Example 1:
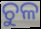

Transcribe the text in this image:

ଚୁଳ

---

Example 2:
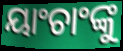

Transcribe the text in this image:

ୟାଂଚାଂଙ୍କୁ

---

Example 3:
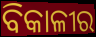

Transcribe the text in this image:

ବିକାଳୀର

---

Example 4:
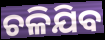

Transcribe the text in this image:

ଚଳିଯିବ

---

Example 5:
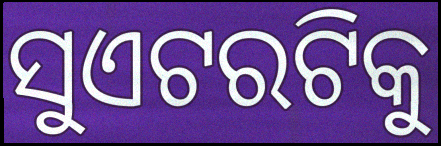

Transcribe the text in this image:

ସୁଏଟରଟିକୁ